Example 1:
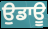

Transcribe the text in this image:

ਉਡਾਊ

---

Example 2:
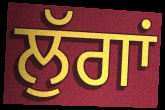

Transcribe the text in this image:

ਲੁੱਗਾਂ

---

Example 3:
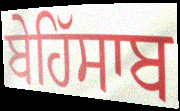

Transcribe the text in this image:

ਬੇਹਿੱਸਾਬ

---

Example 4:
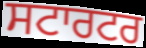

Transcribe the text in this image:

ਸਟਾਰਟਰ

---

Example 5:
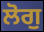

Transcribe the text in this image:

ਲੋਗੁ